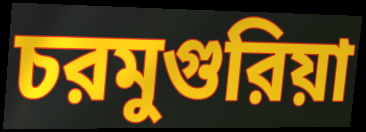
চরমুগুরিয়া